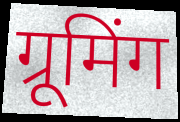
ग्रूमिंग